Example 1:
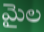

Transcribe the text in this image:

మైల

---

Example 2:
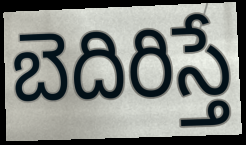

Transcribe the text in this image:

బెదిరిస్తే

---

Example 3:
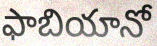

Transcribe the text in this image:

ఫాబియానో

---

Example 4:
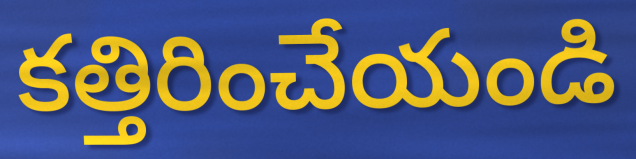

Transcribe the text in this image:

కత్తిరించేయండి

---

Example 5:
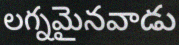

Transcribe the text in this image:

లగ్నమైనవాడు